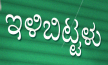
ಇಳಿಬಿಟ್ಟಳು